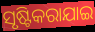
ସୃଷ୍ଟିକରାଯାଇ